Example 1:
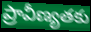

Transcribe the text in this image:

ప్రావీణ్యతకు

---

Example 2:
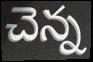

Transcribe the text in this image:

చెన్న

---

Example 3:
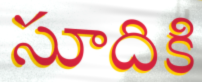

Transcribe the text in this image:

సూదికి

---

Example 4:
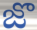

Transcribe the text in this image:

జొ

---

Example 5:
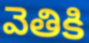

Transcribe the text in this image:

వెతికి